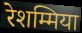
रेशम्मिया